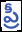
ప్రీ